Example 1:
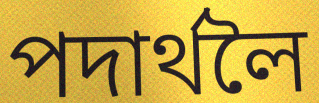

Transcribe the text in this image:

পদাৰ্থলৈ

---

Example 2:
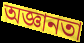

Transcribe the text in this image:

অজ্ঞানতা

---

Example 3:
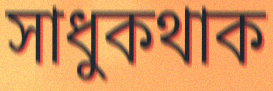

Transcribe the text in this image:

সাধুকথাক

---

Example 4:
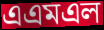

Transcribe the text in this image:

এএমএল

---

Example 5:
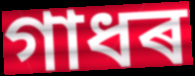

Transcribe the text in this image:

গাধৰ